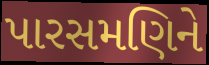
પારસમણિને